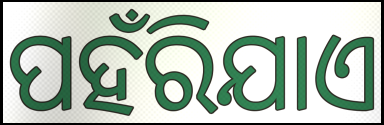
ପହଁରିଯାଏ